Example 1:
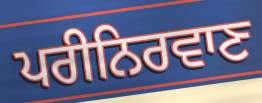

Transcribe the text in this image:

ਪਰੀਨਿਰਵਾਣ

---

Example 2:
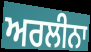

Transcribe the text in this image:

ਅਰਲੀਨਾ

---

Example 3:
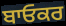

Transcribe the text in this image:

ਬਾਓਕਰ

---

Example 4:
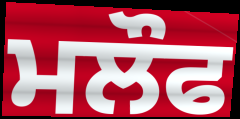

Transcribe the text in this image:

ਮਲੌਫ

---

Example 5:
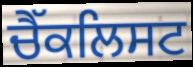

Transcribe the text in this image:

ਚੈੱਕਲਿਸਟ